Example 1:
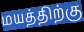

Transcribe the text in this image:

மயத்திற்கு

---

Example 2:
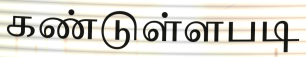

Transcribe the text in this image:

கண்டுள்ளபடி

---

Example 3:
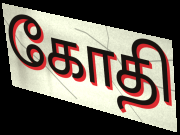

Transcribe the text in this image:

கோதி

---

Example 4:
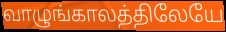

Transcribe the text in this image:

வாழுங்காலத்திலேயே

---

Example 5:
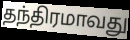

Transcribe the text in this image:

தந்திரமாவது